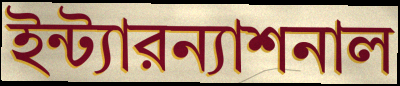
ইন্ট্যারন্যাশনাল